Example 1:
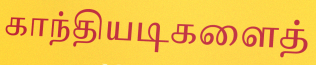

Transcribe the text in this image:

காந்தியடிகளைத்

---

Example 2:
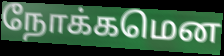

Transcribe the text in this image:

நோக்கமென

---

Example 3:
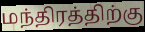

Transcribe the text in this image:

மந்திரத்திற்கு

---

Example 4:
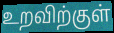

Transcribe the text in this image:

உறவிற்குள்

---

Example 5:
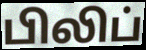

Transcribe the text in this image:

பிலிப்